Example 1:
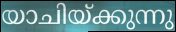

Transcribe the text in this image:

യാചിയ്ക്കുന്നു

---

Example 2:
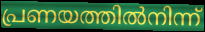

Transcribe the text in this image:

പ്രണയത്തിൽനിന്ന്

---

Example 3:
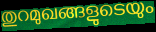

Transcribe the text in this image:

തുറമുഖങ്ങളുടെയും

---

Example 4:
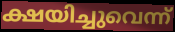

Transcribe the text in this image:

ക്ഷയിച്ചുവെന്ന്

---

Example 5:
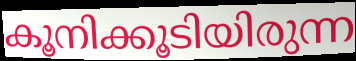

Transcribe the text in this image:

കൂനിക്കൂടിയിരുന്ന